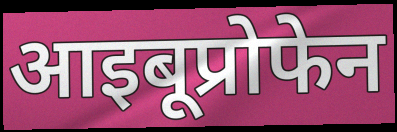
आइबूप्रोफेन